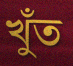
খুঁত